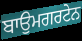
ਬਾਉਮਗਰਟੇਨ